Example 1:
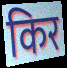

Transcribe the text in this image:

किर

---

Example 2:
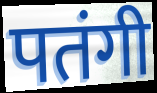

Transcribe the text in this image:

पतंगी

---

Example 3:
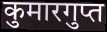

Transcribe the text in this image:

कुमारगुप्त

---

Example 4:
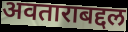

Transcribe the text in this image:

अवताराबद्दल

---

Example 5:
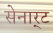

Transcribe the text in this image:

सेनार्ट